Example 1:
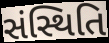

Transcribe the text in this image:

સંસ્થિતિ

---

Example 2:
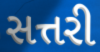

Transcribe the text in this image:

સત્તરી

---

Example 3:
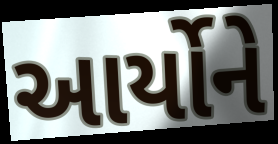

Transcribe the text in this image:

આર્યોને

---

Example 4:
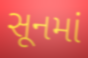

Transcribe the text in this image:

સૂનમાં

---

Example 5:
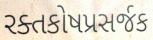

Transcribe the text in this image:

રક્તકોષપ્રસર્જક